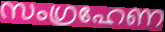
സംഗ്രഹേണ